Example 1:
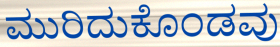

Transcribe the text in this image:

ಮುರಿದುಕೊಂಡವು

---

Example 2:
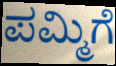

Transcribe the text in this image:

ಪಮ್ಮಿಗೆ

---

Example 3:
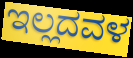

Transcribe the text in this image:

ಇಲ್ಲದವಳ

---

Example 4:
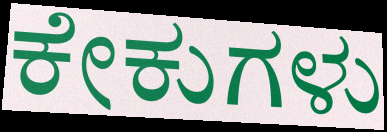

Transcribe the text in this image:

ಕೇಕುಗಳು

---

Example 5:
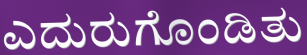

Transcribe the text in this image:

ಎದುರುಗೊಂಡಿತು